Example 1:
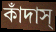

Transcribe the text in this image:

কাঁদাস্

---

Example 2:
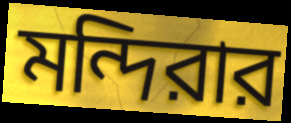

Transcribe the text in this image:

মন্দিরার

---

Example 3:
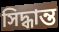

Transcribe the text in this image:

সিদ্ধান্ত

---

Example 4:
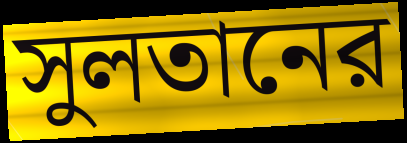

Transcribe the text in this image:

সুলতানের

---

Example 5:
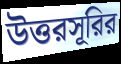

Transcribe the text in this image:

উত্তরসূরির